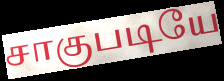
சாகுபடியே